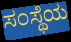
ಸಂಸ್ಥೆಯ